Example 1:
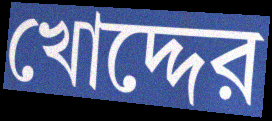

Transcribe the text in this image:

খোদ্দের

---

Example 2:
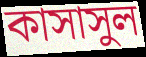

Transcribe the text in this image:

কাসাসুল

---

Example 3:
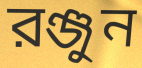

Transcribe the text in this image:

রঞ্জুন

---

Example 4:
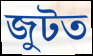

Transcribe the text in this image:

জুটত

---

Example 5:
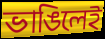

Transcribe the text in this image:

ভাঙিলেই